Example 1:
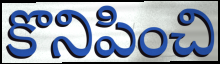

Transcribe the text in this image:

కొనిపించి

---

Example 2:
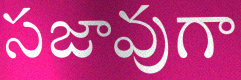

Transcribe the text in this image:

సజావుగా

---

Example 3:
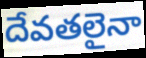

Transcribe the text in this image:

దేవతలైనా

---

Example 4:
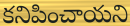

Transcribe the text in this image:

కనిపించాయని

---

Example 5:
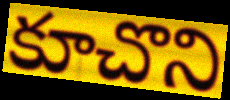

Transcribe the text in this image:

కూచొని